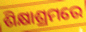
ଶିକ୍ଷାଶ୍ରମରେ